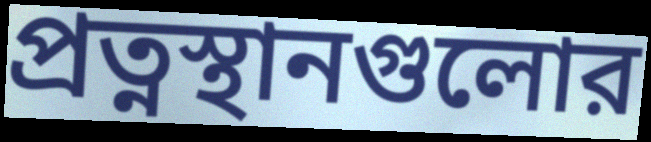
প্রত্নস্থানগুলোর